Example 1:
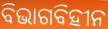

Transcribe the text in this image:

ବିଭାଗବିହୀନ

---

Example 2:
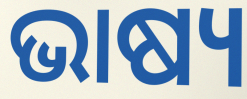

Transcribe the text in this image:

ଭାଷ୍ୟ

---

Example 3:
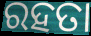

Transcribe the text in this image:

ରହତା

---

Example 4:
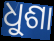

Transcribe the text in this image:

ଧୁଶା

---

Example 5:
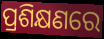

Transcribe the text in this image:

ପ୍ରଶିକ୍ଷଣରେ